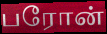
பரோன்